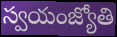
స్వయంజ్యోతి